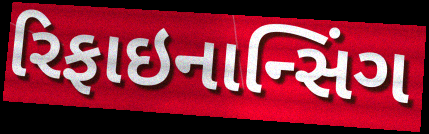
રિફાઇનાન્સિંગ